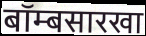
बॉम्बसारखा